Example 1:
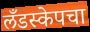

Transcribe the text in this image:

लँडस्केपचा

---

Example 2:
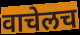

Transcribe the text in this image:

वाचेलच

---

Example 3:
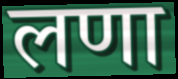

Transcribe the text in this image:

लणा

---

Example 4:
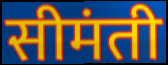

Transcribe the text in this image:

सीमंती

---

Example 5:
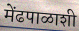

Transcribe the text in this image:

मेंढपाळाशी